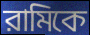
রামিকে